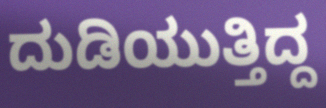
ದುಡಿಯುತ್ತಿದ್ದ